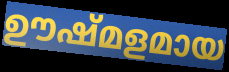
ഊഷ്മളമായ